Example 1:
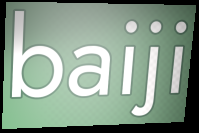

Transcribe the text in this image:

baiji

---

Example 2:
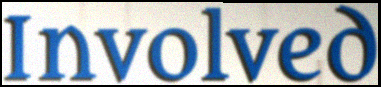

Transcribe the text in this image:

Involved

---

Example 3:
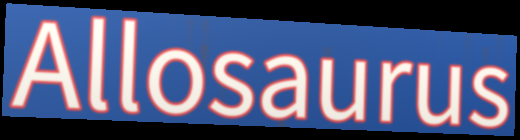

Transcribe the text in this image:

Allosaurus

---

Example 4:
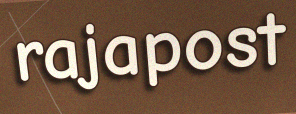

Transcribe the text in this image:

rajapost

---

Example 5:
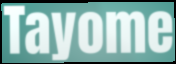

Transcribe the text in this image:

Tayome